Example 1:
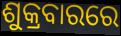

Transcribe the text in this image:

ଶୁକ୍ରବାରରେ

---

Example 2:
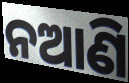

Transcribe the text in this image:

ନଆଣି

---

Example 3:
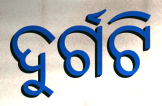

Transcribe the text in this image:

ଦୁର୍ଗଟି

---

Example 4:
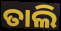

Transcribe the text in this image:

ତାଲି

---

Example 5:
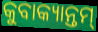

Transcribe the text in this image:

କୁବାକ୍ୟାନ୍ତମ୍